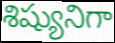
శిష్యునిగా